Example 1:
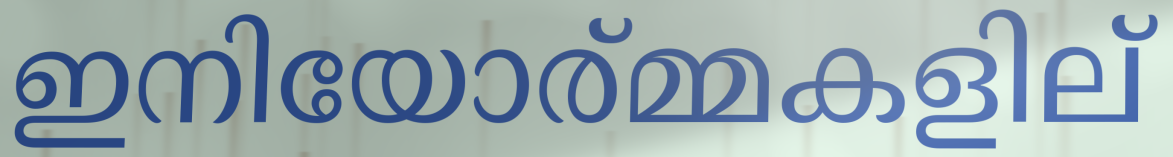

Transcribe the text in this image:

ഇനിയോര്മ്മകളില്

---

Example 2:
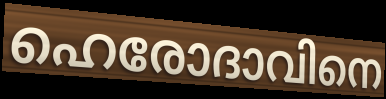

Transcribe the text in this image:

ഹെരോദാവിനെ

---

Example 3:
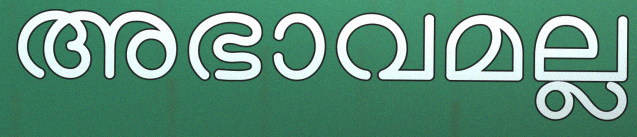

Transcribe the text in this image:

അഭാവമല്ല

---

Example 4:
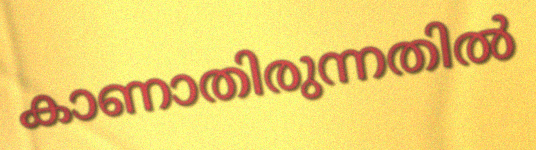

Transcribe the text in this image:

കാണാതിരുന്നതിൽ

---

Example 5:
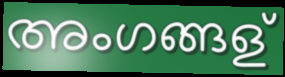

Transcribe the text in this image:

അംഗങ്ങള്